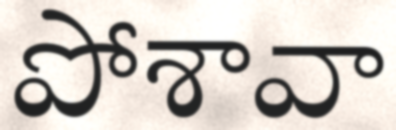
పోశావా